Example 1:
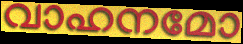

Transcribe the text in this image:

വാഹനമോ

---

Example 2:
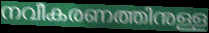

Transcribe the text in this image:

നവീകരണത്തിനുള്ള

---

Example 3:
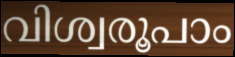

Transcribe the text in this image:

വിശ്വരൂപാം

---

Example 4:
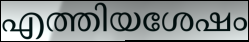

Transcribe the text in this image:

എത്തിയശേഷം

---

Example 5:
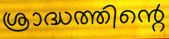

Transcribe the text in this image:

ശ്രാദ്ധത്തിന്റെ